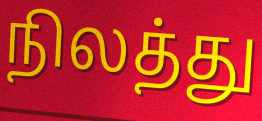
நிலத்து